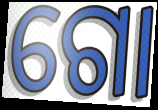
ଗୋ